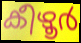
കീഴൂർ